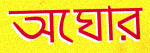
অঘোর